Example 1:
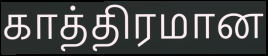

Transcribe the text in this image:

காத்திரமான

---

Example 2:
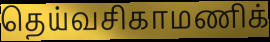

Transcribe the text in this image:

தெய்வசிகாமணிக்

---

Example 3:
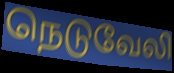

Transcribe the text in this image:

நெடுவேலி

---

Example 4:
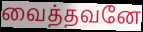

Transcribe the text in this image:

வைத்தவனே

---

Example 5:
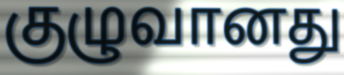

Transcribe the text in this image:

குழுவானது